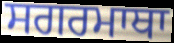
ਸਗਰਮਾਥਾ